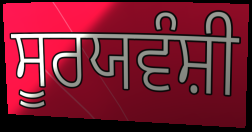
ਸੂਰਯਵੰਸ਼ੀ